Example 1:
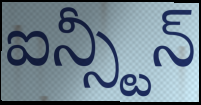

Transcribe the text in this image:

ఐన్స్టీన్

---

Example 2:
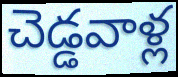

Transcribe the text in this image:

చెడ్డవాళ్ల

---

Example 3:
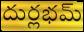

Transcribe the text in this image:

దుర్లభమ్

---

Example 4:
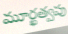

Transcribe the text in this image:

మూర్ఖత్వపు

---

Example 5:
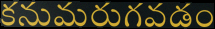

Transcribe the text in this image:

కనుమరుగవడం